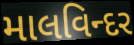
માલવિન્દર